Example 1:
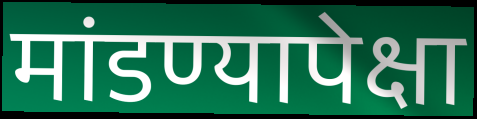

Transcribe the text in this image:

मांडण्यापेक्षा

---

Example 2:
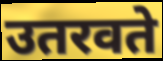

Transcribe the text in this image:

उतरवते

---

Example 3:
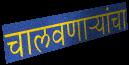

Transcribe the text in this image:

चालवणाऱ्यांचा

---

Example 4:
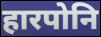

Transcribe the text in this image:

हारपोनि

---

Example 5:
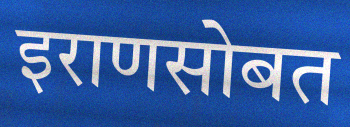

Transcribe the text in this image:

इराणसोबत